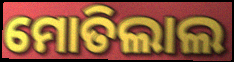
ମୋତିଲାଲ